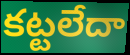
కట్టలేదా